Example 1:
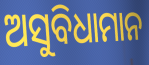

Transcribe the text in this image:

ଅସୁବିଧାମାନ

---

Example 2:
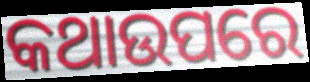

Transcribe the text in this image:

କଥାଉପରେ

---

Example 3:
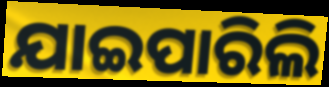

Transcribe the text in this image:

ଯାଇପାରିଲି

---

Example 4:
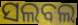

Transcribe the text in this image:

ସଲବଲ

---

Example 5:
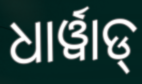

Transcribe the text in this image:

ଧାର୍ୱାଡ୍